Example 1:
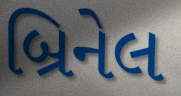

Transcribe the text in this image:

બ્રિનેલ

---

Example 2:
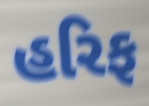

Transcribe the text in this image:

હરિફ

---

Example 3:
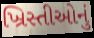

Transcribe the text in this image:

ખ્રિસ્તીઓનું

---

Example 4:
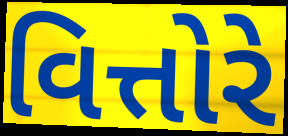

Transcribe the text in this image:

વિત્તોરે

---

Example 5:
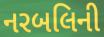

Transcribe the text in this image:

નરબલિની